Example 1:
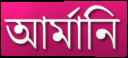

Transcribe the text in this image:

আর্মানি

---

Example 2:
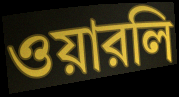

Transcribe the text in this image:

ওয়ারলি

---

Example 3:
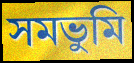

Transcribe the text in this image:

সমভুমি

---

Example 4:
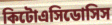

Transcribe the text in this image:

কিটোএসিডোসিস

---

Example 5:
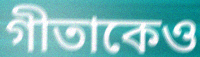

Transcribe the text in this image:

গীতাকেও